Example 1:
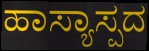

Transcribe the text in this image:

ಹಾಸ್ಯಾಸ್ಪದ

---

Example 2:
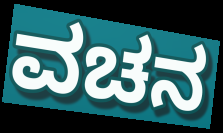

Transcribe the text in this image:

ವಚನ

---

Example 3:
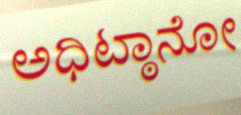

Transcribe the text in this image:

ಅಧಿಟ್ಠಾನೋ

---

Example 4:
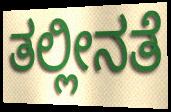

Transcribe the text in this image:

ತಲ್ಲೀನತೆ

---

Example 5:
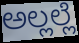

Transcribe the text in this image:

ಅಲ್ಲಲ್ಲೆ